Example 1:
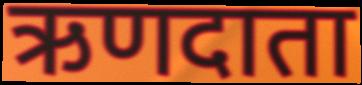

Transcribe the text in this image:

ऋणदाता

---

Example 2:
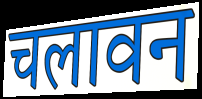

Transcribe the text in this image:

चलावन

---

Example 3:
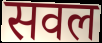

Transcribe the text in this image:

सवल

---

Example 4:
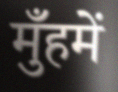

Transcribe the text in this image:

मुँहमें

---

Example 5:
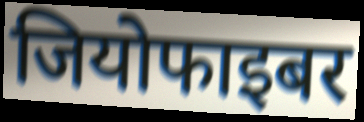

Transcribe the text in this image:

जियोफाइबर